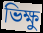
ভিক্ষু